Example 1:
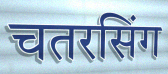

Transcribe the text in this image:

चतरसिंग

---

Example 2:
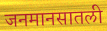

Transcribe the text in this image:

जनमानसातली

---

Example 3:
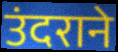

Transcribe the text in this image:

उंदराने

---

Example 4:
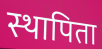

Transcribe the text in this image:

स्थापिता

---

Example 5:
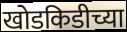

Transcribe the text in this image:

खोडकिडीच्या